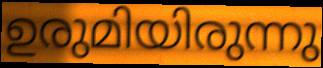
ഉരുമിയിരുന്നു